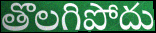
తొలగిపోదు